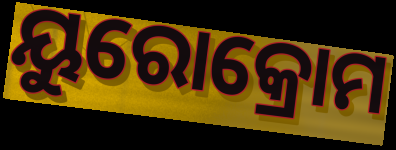
ୟୁରୋକ୍ରୋମ